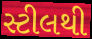
સ્ટીલથી